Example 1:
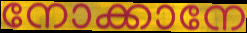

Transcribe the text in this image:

നോക്കാനേ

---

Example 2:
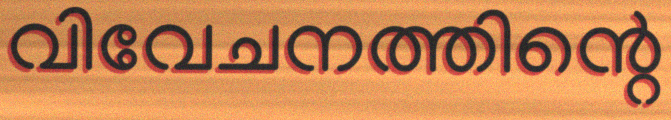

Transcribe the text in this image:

വിവേചനത്തിന്റെ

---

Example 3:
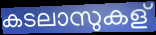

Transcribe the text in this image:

കടലാസുകള്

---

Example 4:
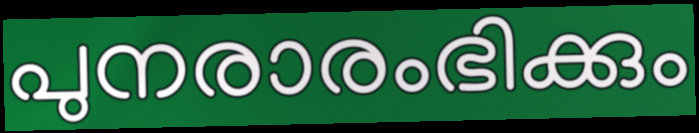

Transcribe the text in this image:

പുനരാരംഭിക്കും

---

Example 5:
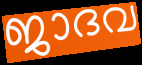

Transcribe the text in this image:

ജാദവ